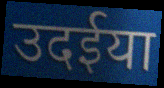
उदईया